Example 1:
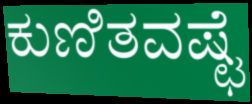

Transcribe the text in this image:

ಕುಣಿತವಷ್ಟೆ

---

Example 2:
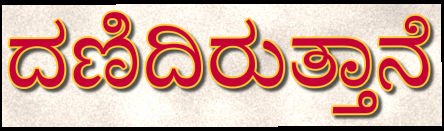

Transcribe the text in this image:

ದಣಿದಿರುತ್ತಾನೆ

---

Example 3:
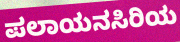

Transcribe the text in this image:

ಪಲಾಯನಸಿರಿಯ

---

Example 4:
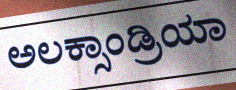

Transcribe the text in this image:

ಅಲಕ್ಸಾಂಡ್ರಿಯಾ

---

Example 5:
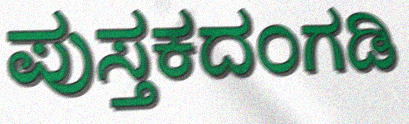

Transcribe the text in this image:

ಪುಸ್ತಕದಂಗಡಿ